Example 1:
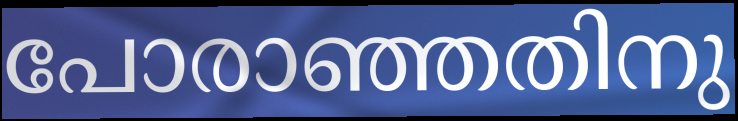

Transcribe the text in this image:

പോരാഞ്ഞതിനു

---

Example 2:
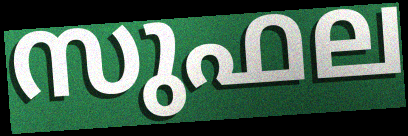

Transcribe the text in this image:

സുഫല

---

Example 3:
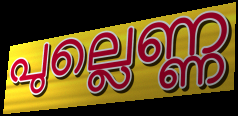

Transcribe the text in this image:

പുല്ലെണ്ണ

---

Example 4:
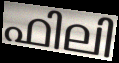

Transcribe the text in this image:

ഫിലി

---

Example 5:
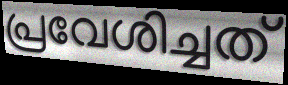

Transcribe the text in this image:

പ്രവേശിച്ചത്